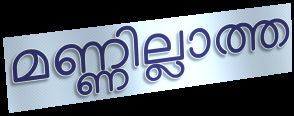
മണ്ണില്ലാത്ത